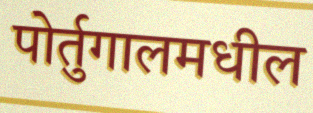
पोर्तुगालमधील